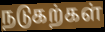
நடுகற்கள்